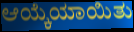
ಆಯ್ಕೆಯಾಯಿತು